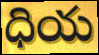
ధియ